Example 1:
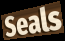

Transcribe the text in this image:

Seals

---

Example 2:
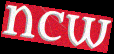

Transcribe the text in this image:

ncw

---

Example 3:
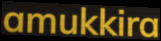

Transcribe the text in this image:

amukkira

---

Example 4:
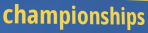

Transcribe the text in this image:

championships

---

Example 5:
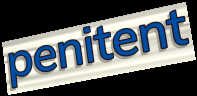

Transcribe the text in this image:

penitent